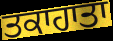
ਤਕਾਹਾਤਾ